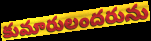
కుమారులందరును